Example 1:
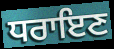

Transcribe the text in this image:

ਧਰਾਇਣ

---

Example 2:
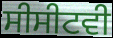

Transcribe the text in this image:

ਸੀਸੀਟਵੀ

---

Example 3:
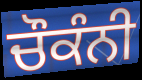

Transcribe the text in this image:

ਚੌਕੰਨੀ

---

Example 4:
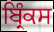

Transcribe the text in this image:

ਬ੍ਰਿੰਕਸ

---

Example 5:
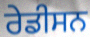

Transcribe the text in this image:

ਰੇਡੀਸਨ